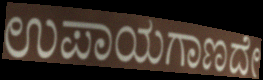
ಉಪಾಯಗಾಣದೇ